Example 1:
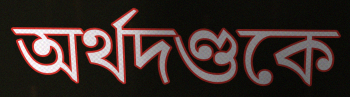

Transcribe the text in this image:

অর্থদণ্ডকে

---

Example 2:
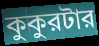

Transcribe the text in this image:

কুকুরটার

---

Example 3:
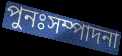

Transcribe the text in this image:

পুনঃসম্পাদনা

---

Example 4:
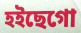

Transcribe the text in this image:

হইছেগো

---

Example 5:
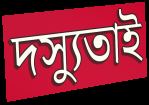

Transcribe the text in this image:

দস্যুতাই